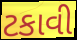
ટકાવી